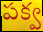
పక్వ